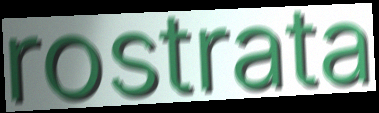
rostrata